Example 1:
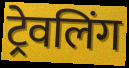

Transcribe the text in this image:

ट्रेवलिंग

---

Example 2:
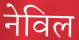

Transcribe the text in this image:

नेविल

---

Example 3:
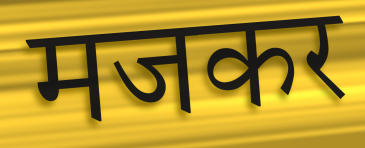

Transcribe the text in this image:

मजकर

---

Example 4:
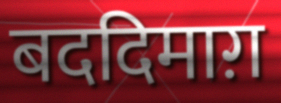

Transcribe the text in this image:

बददिमाग़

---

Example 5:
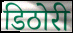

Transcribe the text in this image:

डिठोरी